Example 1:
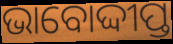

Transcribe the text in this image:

ଭାବୋଦ୍ଦୀପ୍ତ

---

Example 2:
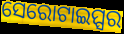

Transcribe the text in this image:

ସେରୋଟାଇପ୍ସର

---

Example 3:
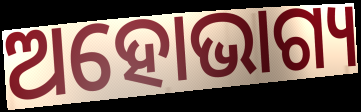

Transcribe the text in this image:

ଅହୋଭାଗ୍ୟ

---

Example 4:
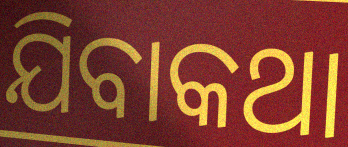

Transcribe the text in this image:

ଯିବାକଥା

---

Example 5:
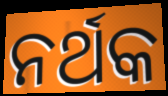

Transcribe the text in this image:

ନର୍ଥକ